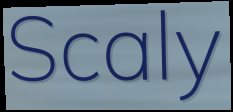
Scaly